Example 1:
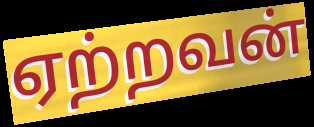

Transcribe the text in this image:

ஏற்றவன்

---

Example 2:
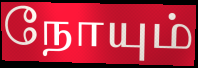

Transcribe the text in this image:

நோயும்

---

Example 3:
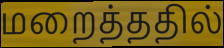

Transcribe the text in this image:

மறைத்ததில்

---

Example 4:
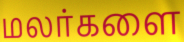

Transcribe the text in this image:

மலர்களை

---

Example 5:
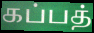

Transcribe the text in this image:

கப்பத்